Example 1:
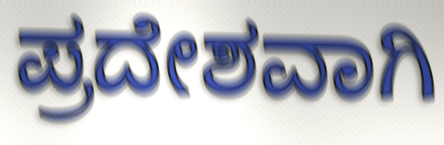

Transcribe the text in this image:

ಪ್ರದೇಶವಾಗಿ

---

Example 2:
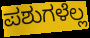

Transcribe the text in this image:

ಪಶುಗಳೆಲ್ಲ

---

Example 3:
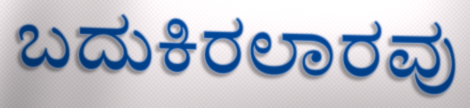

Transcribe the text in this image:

ಬದುಕಿರಲಾರವು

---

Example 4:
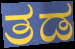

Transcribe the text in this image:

ತಡ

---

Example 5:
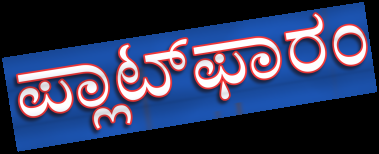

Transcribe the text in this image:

ಪ್ಲಾಟ್‌ಫಾರಂ